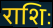
राशिः